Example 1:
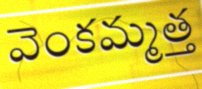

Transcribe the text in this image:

వెంకమ్మత్త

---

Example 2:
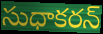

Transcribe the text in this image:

సుధాకరన్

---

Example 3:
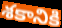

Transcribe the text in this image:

శకానికి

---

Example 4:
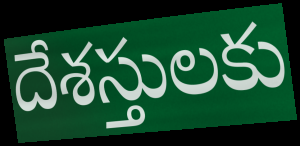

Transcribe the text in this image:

దేశస్తులకు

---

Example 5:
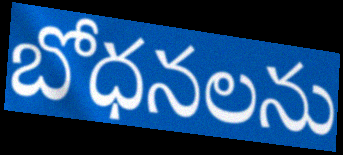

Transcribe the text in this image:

బోధనలను